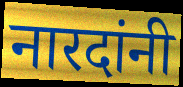
नारदांनी